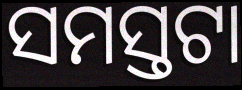
ସମସ୍ତଟା